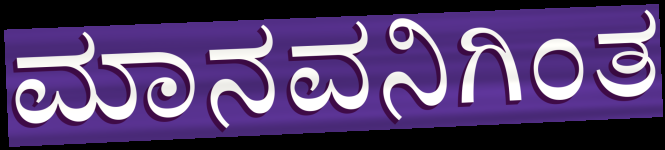
ಮಾನವನಿಗಿಂತ